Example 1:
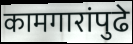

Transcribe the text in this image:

कामगारांपुढे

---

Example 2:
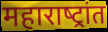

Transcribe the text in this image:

महाराष्ट्रांत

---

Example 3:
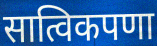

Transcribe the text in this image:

सात्विकपणा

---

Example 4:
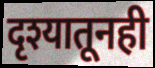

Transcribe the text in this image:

दृश्यातूनही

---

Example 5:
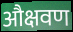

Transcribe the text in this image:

औक्षवण